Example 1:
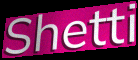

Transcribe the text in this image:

Shetti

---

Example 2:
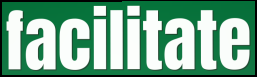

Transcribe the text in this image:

facilitate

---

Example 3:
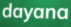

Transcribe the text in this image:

dayana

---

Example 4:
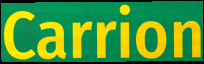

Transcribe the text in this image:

Carrion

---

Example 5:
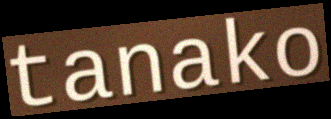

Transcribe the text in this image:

tanako